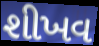
શીખવ